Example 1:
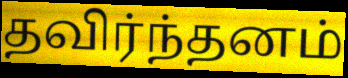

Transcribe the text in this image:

தவிர்ந்தனம்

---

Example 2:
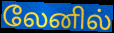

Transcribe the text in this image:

லேனில்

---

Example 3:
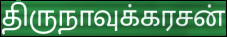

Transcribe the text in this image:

திருநாவுக்கரசன்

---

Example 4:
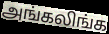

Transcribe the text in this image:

அங்கலிங்க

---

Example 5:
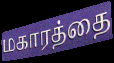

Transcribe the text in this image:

மகாரத்தை